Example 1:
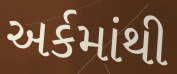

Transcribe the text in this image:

અર્કમાંથી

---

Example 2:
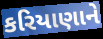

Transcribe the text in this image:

કરિયાણાને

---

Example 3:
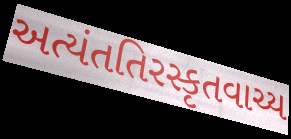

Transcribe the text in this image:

અત્યંતતિરસ્કૃતવાચ્ય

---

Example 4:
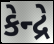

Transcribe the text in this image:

કેન્દ્રે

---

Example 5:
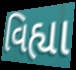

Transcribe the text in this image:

વિહ્યા